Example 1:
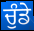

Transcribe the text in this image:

ਚੁੰਡੇ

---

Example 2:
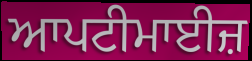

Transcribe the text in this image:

ਆਪਟੀਮਾਈਜ਼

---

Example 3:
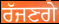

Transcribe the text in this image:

ਰੱਜਣਗੇ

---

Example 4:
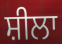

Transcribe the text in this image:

ਸ਼ੀਲਾ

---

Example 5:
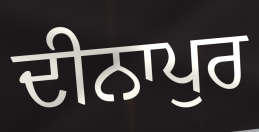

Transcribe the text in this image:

ਦੀਨਾਪੁਰ